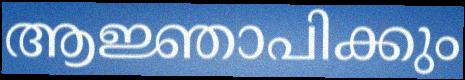
ആജ്ഞാപിക്കും